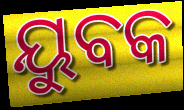
ୟୁବକ